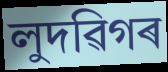
লুদৱিগৰ